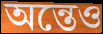
অন্তেও